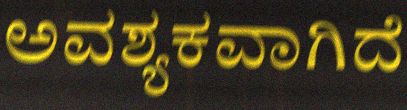
ಅವಶ್ಯಕವಾಗಿದೆ